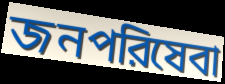
জনপরিষেবা